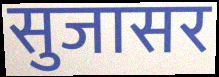
सुजासर